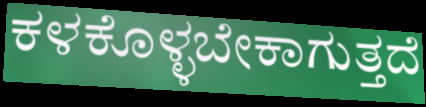
ಕಳಕೊಳ್ಳಬೇಕಾಗುತ್ತದೆ